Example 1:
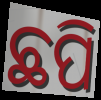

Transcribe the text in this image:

ଛପି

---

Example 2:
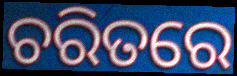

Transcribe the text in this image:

ଚରିତରେ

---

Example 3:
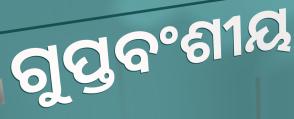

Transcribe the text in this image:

ଗୁପ୍ତବଂଶୀୟ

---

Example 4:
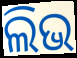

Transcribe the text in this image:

ଲିଭ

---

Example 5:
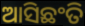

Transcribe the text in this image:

ଆସିଛଂତି